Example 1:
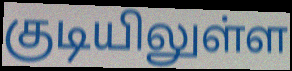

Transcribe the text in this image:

குடியிலுள்ள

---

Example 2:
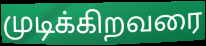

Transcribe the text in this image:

முடிக்கிறவரை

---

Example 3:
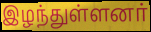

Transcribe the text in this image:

இழந்துள்ளனர்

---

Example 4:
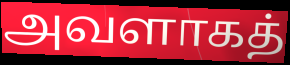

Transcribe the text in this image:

அவளாகத்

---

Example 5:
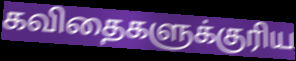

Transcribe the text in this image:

கவிதைகளுக்குரிய